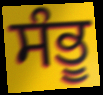
ਸੰਭੂ